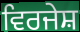
ਵਿਰਜੇਸ਼